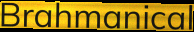
Brahmanical